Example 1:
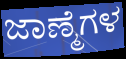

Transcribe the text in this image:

ಜಾಣ್ಮೆಗಳ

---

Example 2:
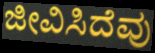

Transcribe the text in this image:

ಜೀವಿಸಿದೆವು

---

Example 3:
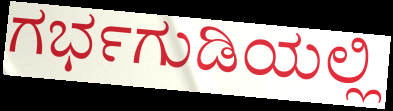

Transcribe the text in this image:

ಗರ್ಭಗುಡಿಯಲ್ಲಿ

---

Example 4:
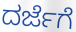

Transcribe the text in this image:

ದರ್ಜೆಗೆ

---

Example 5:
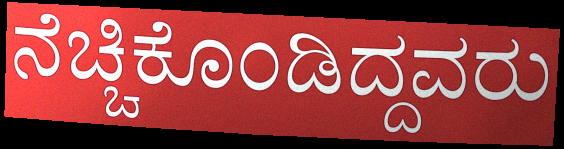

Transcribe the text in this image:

ನೆಚ್ಚಿಕೊಂಡಿದ್ದವರು